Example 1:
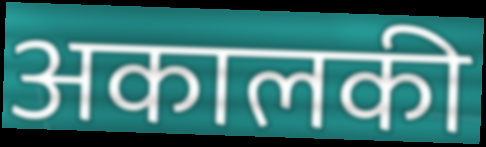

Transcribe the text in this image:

अकालकी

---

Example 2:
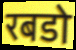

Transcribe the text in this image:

रबडो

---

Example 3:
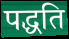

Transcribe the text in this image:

पद्धति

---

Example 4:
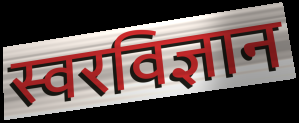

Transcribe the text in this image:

स्वरविज्ञान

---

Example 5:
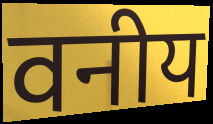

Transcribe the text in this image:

वनीय